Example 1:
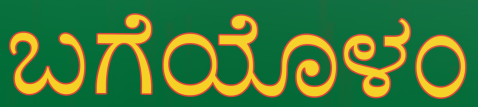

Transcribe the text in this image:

ಬಗೆಯೊಳಂ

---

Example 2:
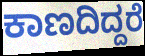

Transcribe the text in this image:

ಕಾಣದಿದ್ದರೆ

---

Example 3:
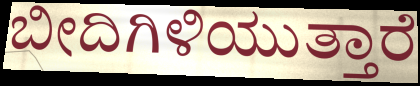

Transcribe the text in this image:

ಬೀದಿಗಿಳಿಯುತ್ತಾರೆ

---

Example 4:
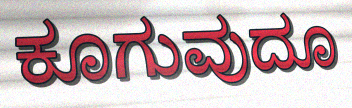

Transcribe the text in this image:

ಕೂಗುವುದೂ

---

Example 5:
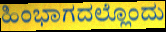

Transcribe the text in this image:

ಹಿಂಭಾಗದಲ್ಲೊಂದು